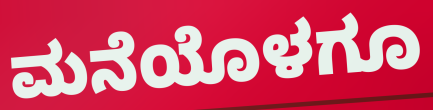
ಮನೆಯೊಳಗೂ